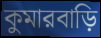
কুমারবাড়ি